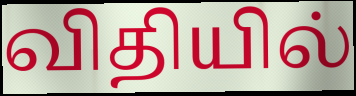
விதியில்